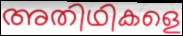
അതിഥികളെ